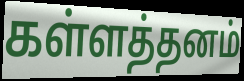
கள்ளத்தனம்